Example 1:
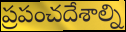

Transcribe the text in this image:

ప్రపంచదేశాల్ని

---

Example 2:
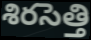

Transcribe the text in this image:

శిరసెత్తి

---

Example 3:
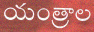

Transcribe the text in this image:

యంత్రాల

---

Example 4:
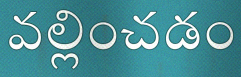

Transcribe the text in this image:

వల్లించడం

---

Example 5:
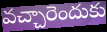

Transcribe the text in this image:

వచ్చారెందుకు